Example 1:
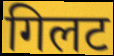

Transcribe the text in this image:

गिलट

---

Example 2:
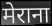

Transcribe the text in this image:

मेराना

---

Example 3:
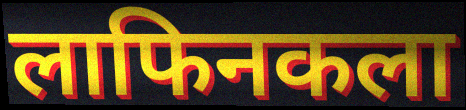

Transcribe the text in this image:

लाफिनकला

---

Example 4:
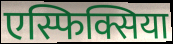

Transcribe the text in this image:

एस्फिक्सिया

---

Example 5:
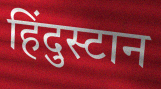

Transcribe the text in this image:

हिंदुस्टान